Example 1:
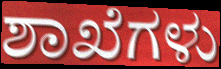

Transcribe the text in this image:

ಶಾಖೆಗಳು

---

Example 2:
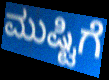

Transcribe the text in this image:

ಮುಷ್ಟಿಗೆ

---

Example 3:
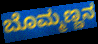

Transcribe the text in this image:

ಬೊಮ್ಮಣ್ಣನ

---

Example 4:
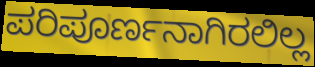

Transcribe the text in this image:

ಪರಿಪೂರ್ಣನಾಗಿರಲಿಲ್ಲ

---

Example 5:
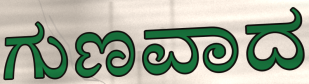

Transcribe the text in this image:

ಗುಣವಾದ